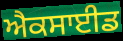
ਐਕਸਾਈਡ